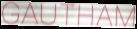
GAUTHAM